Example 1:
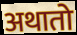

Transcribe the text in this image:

अथातो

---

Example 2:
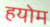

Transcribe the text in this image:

हयोम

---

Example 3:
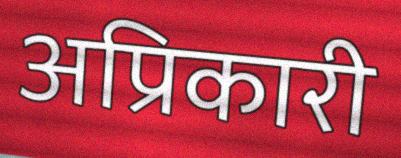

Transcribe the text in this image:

अप्रिकारी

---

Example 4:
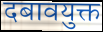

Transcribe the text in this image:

दबावयुक्त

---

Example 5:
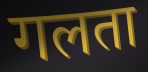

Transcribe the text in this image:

गलता